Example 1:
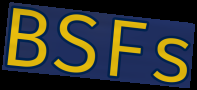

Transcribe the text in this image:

BSFs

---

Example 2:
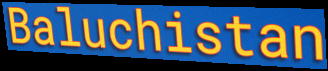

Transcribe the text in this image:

Baluchistan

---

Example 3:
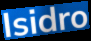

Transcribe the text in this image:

Isidro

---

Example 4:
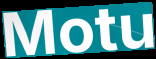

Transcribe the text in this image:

Motu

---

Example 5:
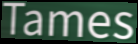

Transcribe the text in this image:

Tames